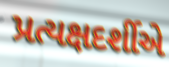
પ્રત્યક્ષદર્શીએ